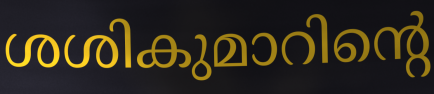
ശശികുമാറിന്റെ